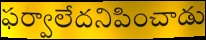
ఫర్వాలేదనిపించాడు